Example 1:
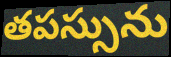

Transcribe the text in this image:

తపస్సును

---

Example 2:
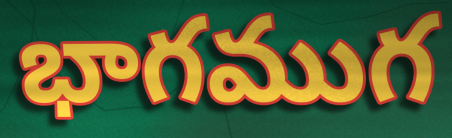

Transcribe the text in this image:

భాగముగ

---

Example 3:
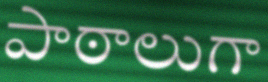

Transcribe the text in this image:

పాఠాలుగా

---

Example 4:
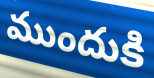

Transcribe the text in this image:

ముందుకి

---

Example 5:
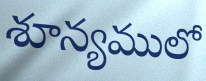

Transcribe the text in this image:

శూన్యములో